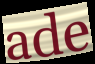
ade